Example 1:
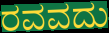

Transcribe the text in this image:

ರವವದು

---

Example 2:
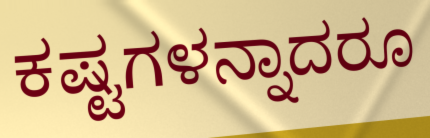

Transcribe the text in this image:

ಕಷ್ಟಗಳನ್ನಾದರೂ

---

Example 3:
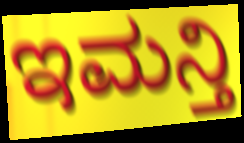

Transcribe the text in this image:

ಇಮನ್ತಿ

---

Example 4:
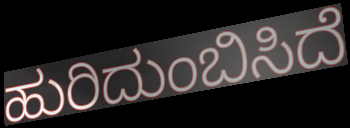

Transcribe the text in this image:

ಹುರಿದುಂಬಿಸಿದೆ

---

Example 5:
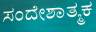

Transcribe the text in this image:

ಸಂದೇಶಾತ್ಮಕ